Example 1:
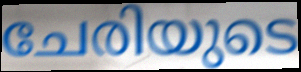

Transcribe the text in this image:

ചേരിയുടെ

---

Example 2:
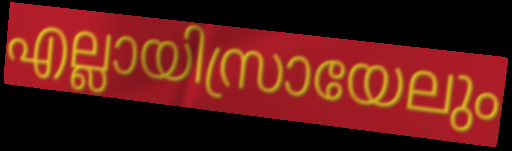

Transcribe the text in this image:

എല്ലായിസ്രായേലും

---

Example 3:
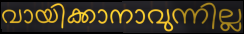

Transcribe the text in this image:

വായിക്കാനാവുന്നില്ല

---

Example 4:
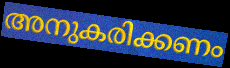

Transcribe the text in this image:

അനുകരിക്കണം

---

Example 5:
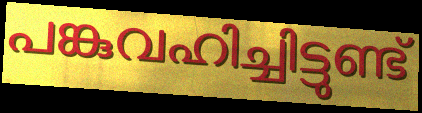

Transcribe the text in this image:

പങ്കുവഹിച്ചിട്ടുണ്ട്